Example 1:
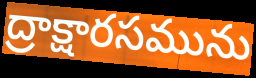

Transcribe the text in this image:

ద్రాక్షారసమును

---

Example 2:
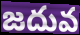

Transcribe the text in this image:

జదువ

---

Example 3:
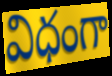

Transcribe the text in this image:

విధంగా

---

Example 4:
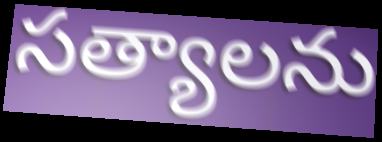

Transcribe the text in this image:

సత్యాలను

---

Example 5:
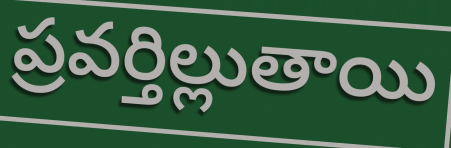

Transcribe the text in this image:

ప్రవర్తిల్లుతాయి